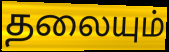
தலையும்